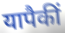
यापैकीं